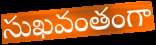
సుఖవంతంగా